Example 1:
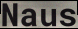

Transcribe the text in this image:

Naus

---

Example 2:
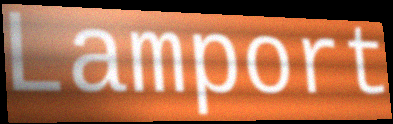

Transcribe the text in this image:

Lamport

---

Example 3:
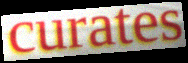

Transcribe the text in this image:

curates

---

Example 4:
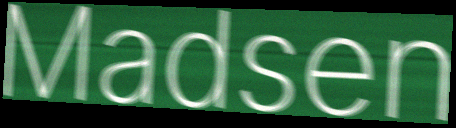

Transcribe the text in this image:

Madsen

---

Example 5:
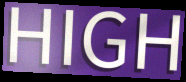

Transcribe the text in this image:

HIGH